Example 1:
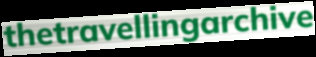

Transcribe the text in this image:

thetravellingarchive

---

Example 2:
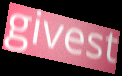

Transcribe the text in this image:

givest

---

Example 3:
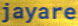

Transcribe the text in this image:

jayare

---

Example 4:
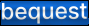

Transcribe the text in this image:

bequest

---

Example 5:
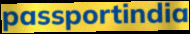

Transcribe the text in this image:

passportindia